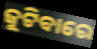
ଜୁଟିବାରେ